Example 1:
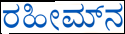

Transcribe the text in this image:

ರಹೀಮ್‌ನ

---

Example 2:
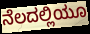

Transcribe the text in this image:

ನೆಲದಲ್ಲಿಯೂ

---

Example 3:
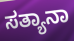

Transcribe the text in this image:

ಸತ್ಯಾನಾ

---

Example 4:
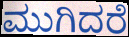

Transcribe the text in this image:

ಮುಗಿದರೆ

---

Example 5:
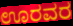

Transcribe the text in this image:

ಊರವರ